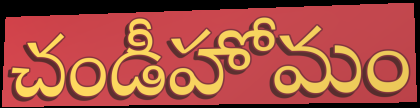
చండీహోమం